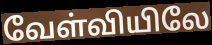
வேள்வியிலே